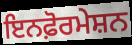
ਇਨਫ਼ੋਰਮੇਸ਼ਨ